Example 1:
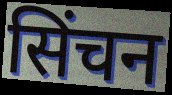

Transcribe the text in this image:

सिंचन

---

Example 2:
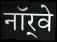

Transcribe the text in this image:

नॉर्वे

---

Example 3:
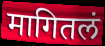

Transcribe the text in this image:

मागितलं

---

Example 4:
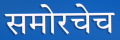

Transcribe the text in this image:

समोरचेच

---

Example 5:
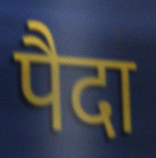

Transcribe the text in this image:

पैदा